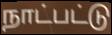
நாட்பட்டு